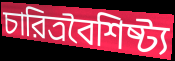
চারিত্রবৈশিষ্ট্য